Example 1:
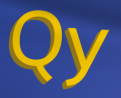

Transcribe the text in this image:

Qy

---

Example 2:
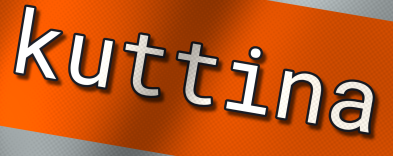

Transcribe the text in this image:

kuttina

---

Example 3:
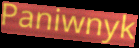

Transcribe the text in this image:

Paniwnyk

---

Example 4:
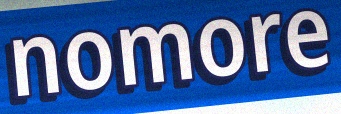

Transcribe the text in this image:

nomore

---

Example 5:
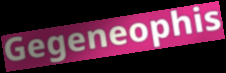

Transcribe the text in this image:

Gegeneophis